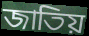
জাতিয়